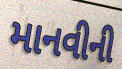
માનવીની